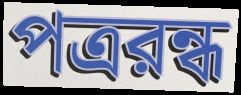
পত্ররন্ধ